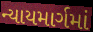
ન્યાયમાર્ગમાં